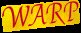
WARP